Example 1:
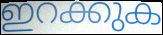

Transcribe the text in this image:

ഇറക്കുക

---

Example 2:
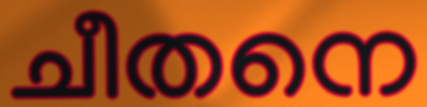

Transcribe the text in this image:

ചീതനെ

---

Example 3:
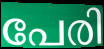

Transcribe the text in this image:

പേരി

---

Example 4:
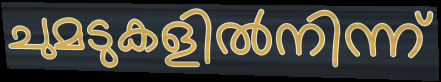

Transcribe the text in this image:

ചുമടുകളിൽനിന്ന്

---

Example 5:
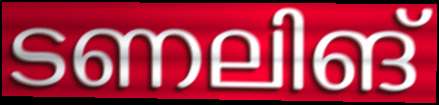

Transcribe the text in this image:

ടണലിങ്